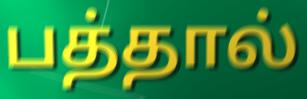
பத்தால்